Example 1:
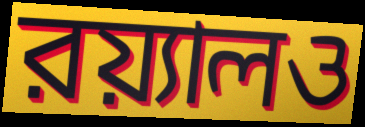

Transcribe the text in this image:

রয়্যালও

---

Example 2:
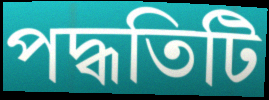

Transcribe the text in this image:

পদ্ধতিটি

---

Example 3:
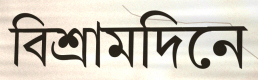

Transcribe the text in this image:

বিশ্রামদিনে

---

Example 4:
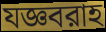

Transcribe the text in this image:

যজ্ঞবরাহ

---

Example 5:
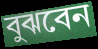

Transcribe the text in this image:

বুঝবেন